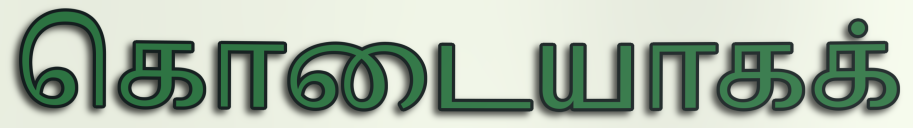
கொடையாகக்